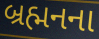
બ્રહ્મનના